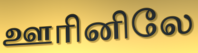
ஊரினிலே